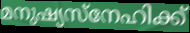
മനുഷ്യസ്നേഹിക്ക്